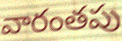
వారంతపు